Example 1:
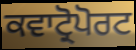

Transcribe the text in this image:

ਕਵਾਟ੍ਰੋਪੋਰਟ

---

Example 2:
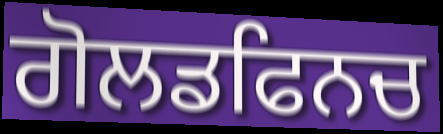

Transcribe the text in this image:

ਗੋਲਡਫਿਨਚ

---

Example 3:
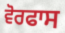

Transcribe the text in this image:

ਵੋਰਫਾਸ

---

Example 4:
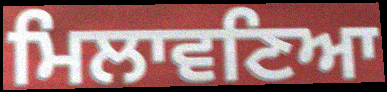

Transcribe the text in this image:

ਮਿਲਾਵਣਿਆ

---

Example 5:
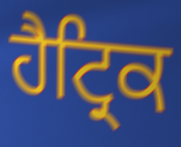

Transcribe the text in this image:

ਹੈਟ੍ਰਿਕ